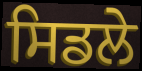
ਸਿਡਲੇ